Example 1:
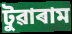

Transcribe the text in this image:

টুৱাৰাম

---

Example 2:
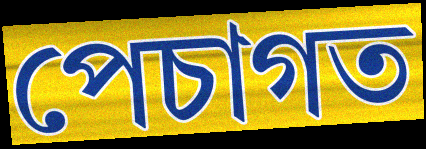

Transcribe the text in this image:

পেচাগত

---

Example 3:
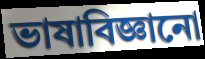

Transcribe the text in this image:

ভাষাবিজ্ঞানো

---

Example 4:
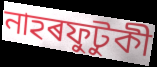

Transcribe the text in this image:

নাহৰফুটুকী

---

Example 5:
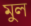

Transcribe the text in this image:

মুল